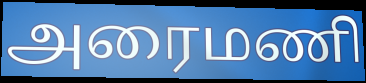
அரைமணி